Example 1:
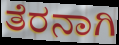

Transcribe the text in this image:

ತೆರನಾಗಿ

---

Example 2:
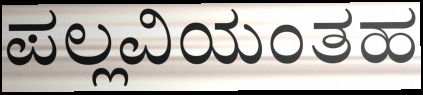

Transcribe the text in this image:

ಪಲ್ಲವಿಯಂತಹ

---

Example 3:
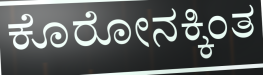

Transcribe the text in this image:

ಕೊರೋನಕ್ಕಿಂತ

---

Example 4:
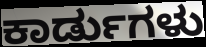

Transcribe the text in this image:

ಕಾರ್ಡುಗಳು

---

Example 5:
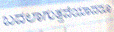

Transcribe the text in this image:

ಬದಲಾಗುತ್ತದೆಯಾದರೂ